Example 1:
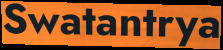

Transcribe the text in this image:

Swatantrya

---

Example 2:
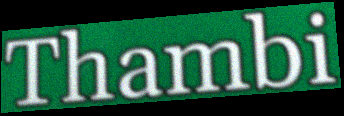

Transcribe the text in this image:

Thambi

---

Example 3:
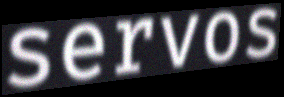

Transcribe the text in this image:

servos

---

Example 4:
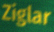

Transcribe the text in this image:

Ziglar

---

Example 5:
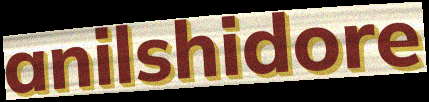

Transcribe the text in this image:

anilshidore